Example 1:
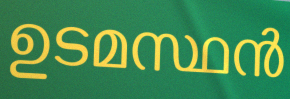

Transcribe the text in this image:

ഉടമസ്ഥൻ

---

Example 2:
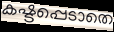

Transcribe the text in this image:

കഷ്ടപ്പെടാതെ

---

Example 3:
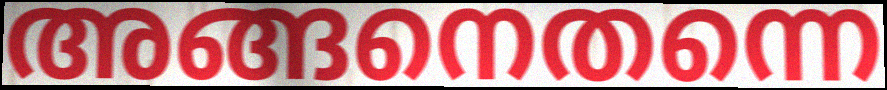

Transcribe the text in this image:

അങ്ങനെതന്നെ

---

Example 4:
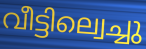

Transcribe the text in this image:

വീട്ടില്വെച്ചു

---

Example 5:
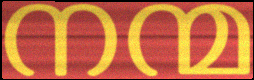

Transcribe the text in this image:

നന്മ